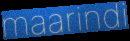
maarindi